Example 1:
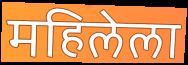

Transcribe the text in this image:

महिलेला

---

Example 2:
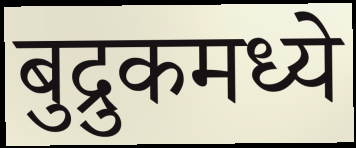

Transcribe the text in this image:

बुद्रुकमध्ये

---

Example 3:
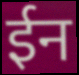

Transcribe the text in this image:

ईन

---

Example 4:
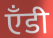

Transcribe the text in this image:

ऍंडी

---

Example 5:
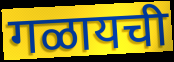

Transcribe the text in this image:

गळायची